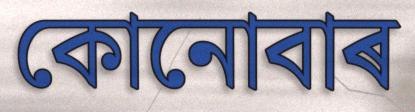
কোনোবাৰ